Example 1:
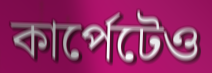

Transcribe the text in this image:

কার্পেটেও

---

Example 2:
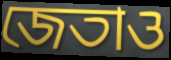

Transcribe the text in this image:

জেতাও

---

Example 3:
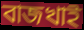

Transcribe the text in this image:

বাজখাই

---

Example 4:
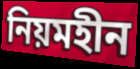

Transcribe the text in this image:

নিয়মহীন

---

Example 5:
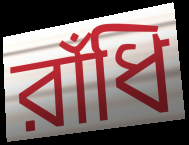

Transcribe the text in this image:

রাঁধি